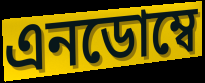
এনডোম্বে